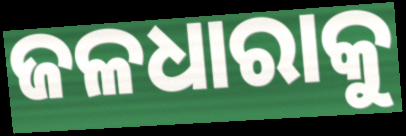
ଜଳଧାରାକୁ